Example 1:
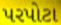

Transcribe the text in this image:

પરપોટા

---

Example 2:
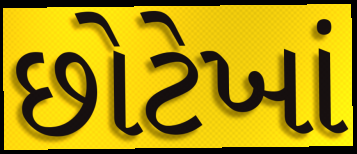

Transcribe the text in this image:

છોટેખાં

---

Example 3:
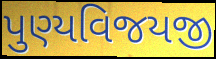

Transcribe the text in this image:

પુણ્યવિજયજી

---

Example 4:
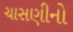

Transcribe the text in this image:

ચાસણીનો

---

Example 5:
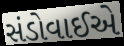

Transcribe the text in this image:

સંડોવાઈએ